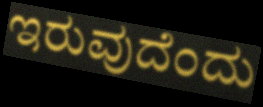
ಇರುವುದೆಂದು